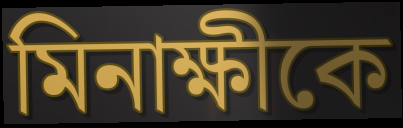
মিনাক্ষীকে